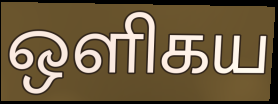
ஒளிகய